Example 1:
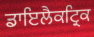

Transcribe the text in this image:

ਡਾਇਲੈਕਟ੍ਰਿਕ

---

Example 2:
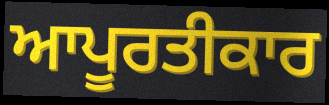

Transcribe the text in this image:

ਆਪੂਰਤੀਕਾਰ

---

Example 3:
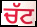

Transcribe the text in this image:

ਚੱਟ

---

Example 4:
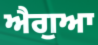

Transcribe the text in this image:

ਐਗੁਆ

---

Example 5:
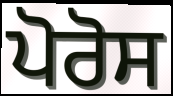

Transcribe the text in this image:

ਪੋਰੋਸ